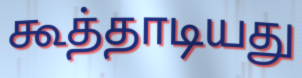
கூத்தாடியது